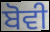
ਬੋਵੀ